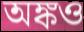
অঙ্কও